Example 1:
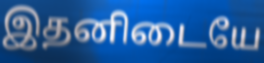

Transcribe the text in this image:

இதனிடையே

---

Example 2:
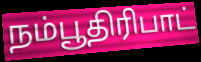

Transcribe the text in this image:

நம்பூதிரிபாட்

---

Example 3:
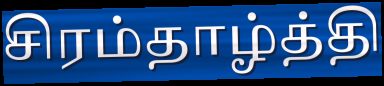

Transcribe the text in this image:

சிரம்தாழ்த்தி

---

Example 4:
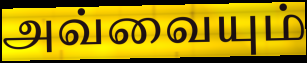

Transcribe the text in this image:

அவ்வையும்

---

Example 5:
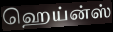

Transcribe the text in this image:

ஹெய்ன்ஸ்